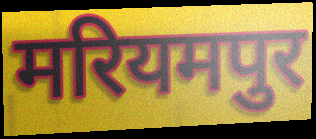
मरियमपुर